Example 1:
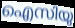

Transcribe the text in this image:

ഐസിയു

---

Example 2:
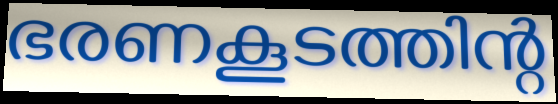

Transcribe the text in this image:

ഭരണകൂടത്തിന്റ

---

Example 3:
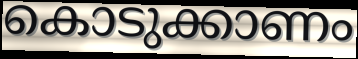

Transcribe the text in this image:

കൊടുക്കാണം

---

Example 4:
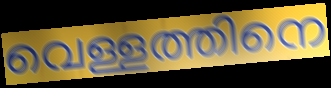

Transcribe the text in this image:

വെള്ളത്തിനെ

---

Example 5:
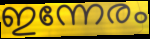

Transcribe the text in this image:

ഇന്നേരം